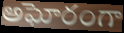
అఘోరంగా